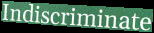
Indiscriminate